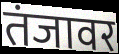
तंजावर